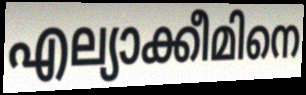
എല്യാക്കീമിനെ